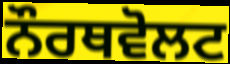
ਨੌਰਥਵੋਲਟ